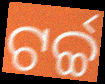
ଟର୍ଚ୍ଚ